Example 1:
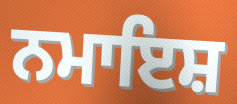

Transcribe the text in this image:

ਨਮਾਇਸ਼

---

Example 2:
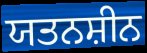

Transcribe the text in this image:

ਯਤਨਸ਼ੀਨ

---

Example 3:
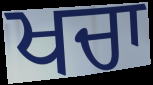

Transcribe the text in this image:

ਖਚਾ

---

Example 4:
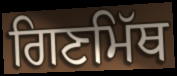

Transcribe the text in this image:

ਗਿਣਮਿੱਥ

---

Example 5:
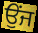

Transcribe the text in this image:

ਉੰਜ